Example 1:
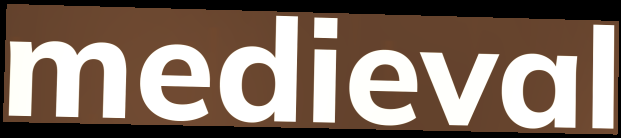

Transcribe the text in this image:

medieval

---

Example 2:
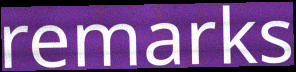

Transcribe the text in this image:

remarks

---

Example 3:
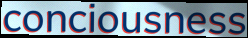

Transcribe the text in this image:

conciousness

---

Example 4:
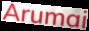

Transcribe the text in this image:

Arumai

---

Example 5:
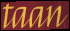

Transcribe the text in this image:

taan